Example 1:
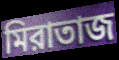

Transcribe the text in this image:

মিরাতাজ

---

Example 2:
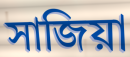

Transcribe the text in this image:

সাজিয়া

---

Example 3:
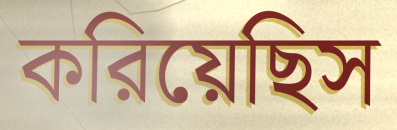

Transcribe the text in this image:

করিয়েছিস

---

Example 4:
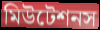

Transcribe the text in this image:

মিউটেশনস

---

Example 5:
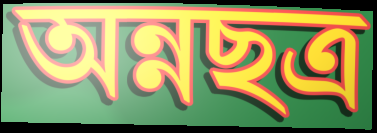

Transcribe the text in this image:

অন্নছত্র